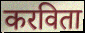
करविता